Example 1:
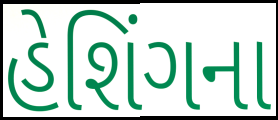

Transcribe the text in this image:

હેશિંગના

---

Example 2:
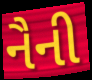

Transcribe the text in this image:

નૈની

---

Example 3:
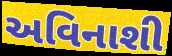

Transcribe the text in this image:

અવિનાશી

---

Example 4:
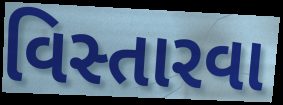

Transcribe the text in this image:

વિસ્તારવા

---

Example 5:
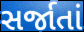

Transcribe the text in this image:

સર્જાતાં